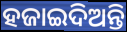
ହଜାଇଦିଅନ୍ତି